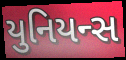
યુનિયન્સ